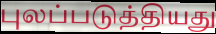
புலப்படுத்தியது